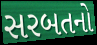
સરબતનો